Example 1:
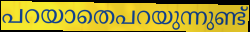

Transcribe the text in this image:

പറയാതെപറയുന്നുണ്ട്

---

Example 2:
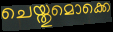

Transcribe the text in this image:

ചെയ്തുമൊക്കെ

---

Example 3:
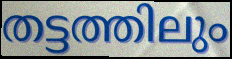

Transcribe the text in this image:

തട്ടത്തിലും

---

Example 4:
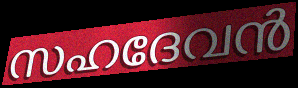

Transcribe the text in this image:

സഹദേവൻ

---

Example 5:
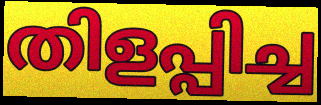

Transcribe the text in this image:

തിളപ്പിച്ച